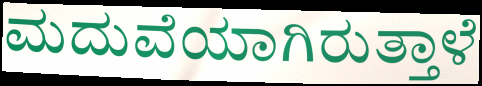
ಮದುವೆಯಾಗಿರುತ್ತಾಳೆ